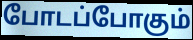
போடப்போகும்